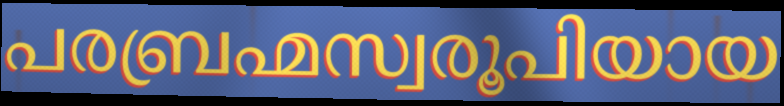
പരബ്രഹ്മസ്വരൂപിയായ